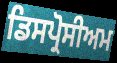
ਡਿਸਪ੍ਰੋਸੀਅਮ